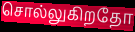
சொல்லுகிறதோ